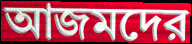
আজমদের